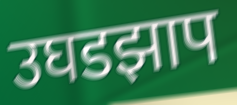
उघडझाप